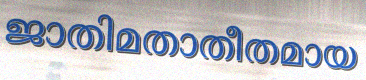
ജാതിമതാതീതമായ